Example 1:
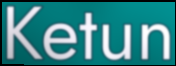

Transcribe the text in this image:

Ketun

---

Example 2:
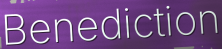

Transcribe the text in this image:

Benediction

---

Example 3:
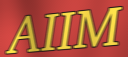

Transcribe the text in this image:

AIIM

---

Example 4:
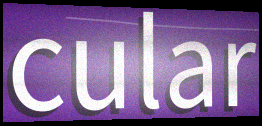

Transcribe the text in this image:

cular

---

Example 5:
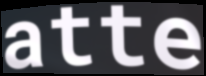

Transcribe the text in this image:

atte